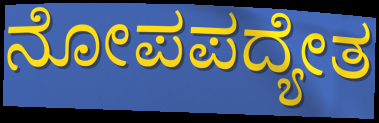
ನೋಪಪದ್ಯೇತ